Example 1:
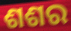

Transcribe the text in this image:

ଶଶର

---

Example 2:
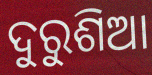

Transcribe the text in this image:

ଦୁରୁଶିଆ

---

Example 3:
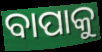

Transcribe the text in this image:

ବାପାକୁ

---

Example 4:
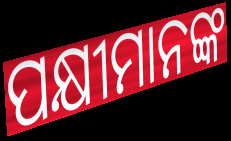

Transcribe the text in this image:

ପକ୍ଷୀମାନଙ୍କ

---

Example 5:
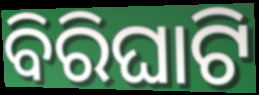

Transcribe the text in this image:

ବିରିଘାଟି